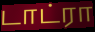
டாட்ரா